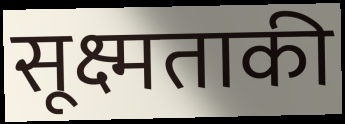
सूक्ष्मताकी